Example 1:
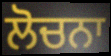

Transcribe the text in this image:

ਲੋਚਨਾ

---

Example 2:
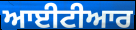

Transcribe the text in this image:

ਆਈਟੀਆਰ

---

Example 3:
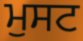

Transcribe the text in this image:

ਮੁਸਟ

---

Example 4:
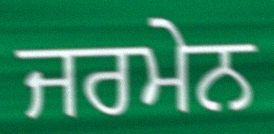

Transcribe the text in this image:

ਜਰਮੇਨ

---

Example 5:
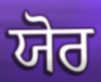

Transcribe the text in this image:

ਯੋਰ